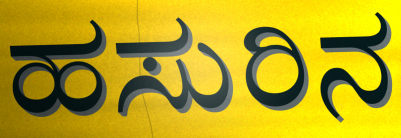
ಹಸುರಿನ